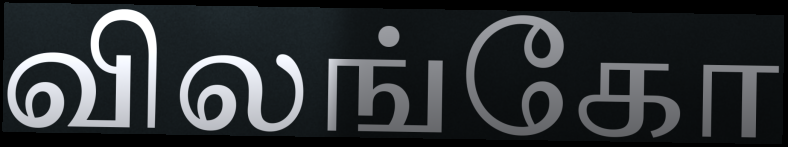
விலங்கோ